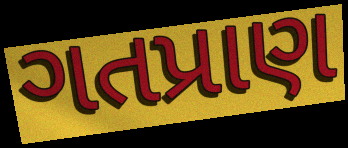
ગતપ્રાણ